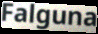
Falguna